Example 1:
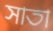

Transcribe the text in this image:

সাতা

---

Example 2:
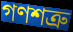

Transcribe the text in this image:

গণশত্রু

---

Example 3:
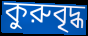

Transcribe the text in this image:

কুরুবৃদ্ধ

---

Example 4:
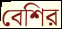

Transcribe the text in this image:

বেশির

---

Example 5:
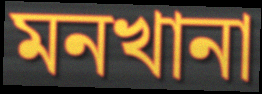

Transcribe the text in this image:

মনখানা